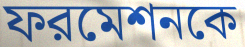
ফরমেশনকে